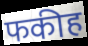
फकीह